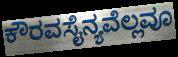
ಕೌರವಸೈನ್ಯವೆಲ್ಲವೂ